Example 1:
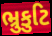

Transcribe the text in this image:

ભ્રુકુટિ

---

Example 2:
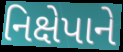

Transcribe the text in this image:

નિક્ષેપાને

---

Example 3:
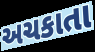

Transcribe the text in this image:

અચકાતા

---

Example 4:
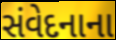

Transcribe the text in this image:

સંવેદનાના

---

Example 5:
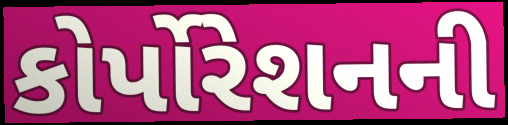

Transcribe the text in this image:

કોર્પોરેશનની